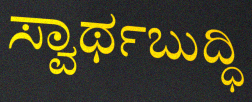
ಸ್ವಾರ್ಥಬುದ್ಧಿ